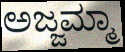
ಅಜ್ಜಮ್ಮಾ